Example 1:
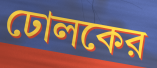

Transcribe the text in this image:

ঢোলকের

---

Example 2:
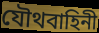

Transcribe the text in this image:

যৌথবাহিনী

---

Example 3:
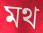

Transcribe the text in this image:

মথ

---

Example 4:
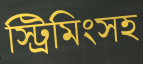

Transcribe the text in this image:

স্ট্রিমিংসহ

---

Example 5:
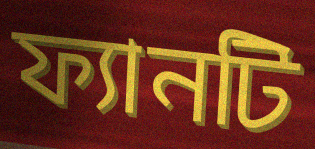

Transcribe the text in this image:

ফ্যানটি